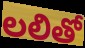
లలితో